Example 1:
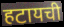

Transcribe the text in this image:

हटायची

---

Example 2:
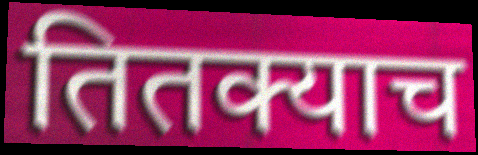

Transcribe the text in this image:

तितक्‍याच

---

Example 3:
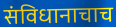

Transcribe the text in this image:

संविधानाचाच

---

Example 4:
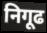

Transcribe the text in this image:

निगूढ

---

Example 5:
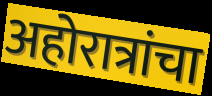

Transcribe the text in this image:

अहोरात्रांचा